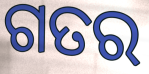
ଗତର